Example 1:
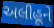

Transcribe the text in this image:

અલીહૂને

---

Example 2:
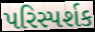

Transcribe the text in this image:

પરિસ્પર્શક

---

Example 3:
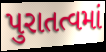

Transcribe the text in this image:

પુરાતત્વમાં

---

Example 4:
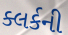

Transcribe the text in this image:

ક્લર્કની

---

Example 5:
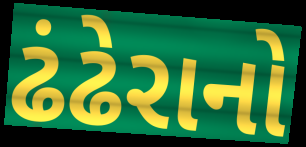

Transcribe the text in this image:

ઢંઢેરાનો